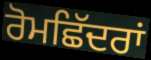
ਰੋਮਛਿੱਦਰਾਂ